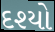
દશ્યો